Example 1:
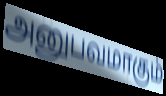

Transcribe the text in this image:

அனுபவமாகும்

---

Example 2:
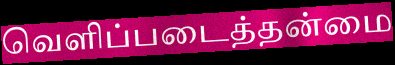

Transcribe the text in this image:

வெளிப்படைத்தன்மை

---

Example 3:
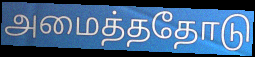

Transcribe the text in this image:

அமைத்ததோடு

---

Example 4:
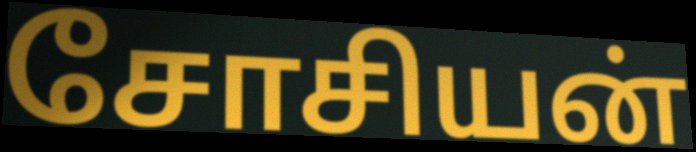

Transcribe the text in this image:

சோசியன்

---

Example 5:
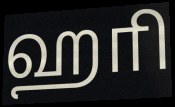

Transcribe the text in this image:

ஹரி